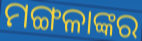
ମଙ୍ଗଳାଙ୍କର